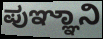
ಪುಞ್ಞಾನಿ